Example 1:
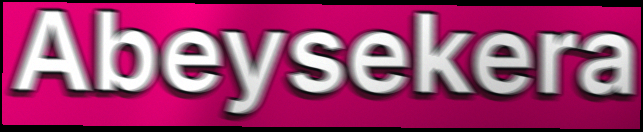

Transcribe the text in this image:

Abeysekera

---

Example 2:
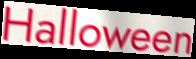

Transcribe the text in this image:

Halloween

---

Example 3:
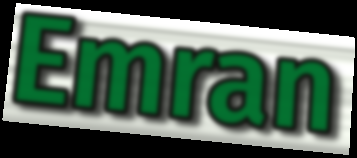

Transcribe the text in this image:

Emran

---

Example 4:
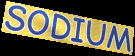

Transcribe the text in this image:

SODIUM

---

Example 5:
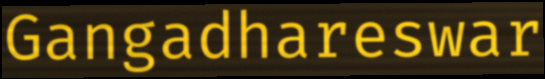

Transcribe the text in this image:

Gangadhareswar